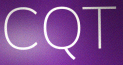
CQT